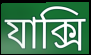
যাক্সি